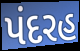
પંદરહ